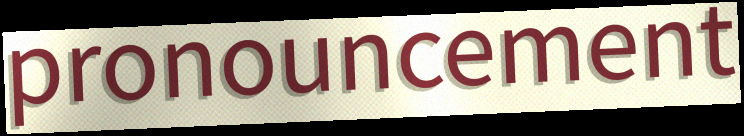
pronouncement